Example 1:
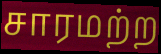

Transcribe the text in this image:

சாரமற்ற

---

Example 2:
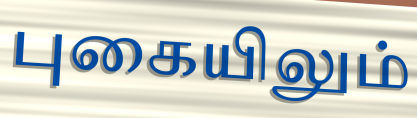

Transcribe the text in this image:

புகையிலும்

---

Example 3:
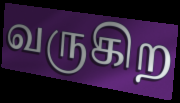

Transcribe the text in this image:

வருகிற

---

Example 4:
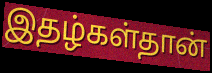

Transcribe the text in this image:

இதழ்கள்தான்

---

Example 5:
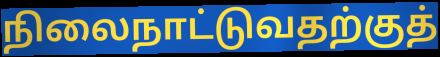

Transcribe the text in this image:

நிலைநாட்டுவதற்குத்